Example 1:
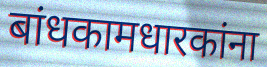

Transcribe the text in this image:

बांधकामधारकांना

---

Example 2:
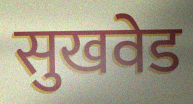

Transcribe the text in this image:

सुखवेड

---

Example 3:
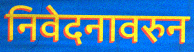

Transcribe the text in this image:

निवेदनावरुन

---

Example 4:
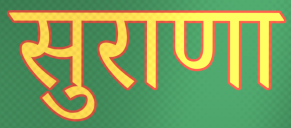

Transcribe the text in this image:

सुराणा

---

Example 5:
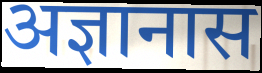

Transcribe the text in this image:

अज्ञानास